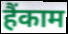
हैंकाम